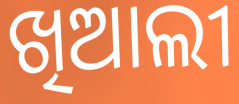
ଖିଆଲୀ